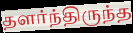
தளர்ந்திருந்த